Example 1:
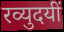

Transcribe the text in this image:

रव्युदयीं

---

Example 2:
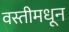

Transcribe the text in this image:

वस्तीमधून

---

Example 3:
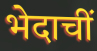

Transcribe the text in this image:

भेदाचीं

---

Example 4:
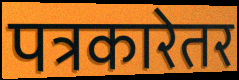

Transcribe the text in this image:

पत्रकारेतर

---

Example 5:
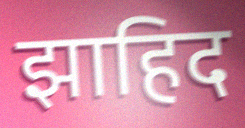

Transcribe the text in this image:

झाहिद